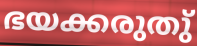
ഭയക്കരുതു്